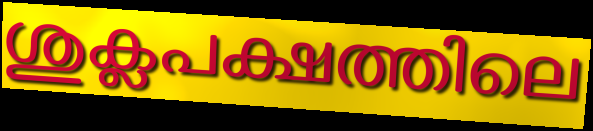
ശുക്ലപക്ഷത്തിലെ